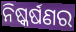
ନିଷ୍କର୍ଷଣର